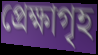
প্ৰেক্ষাগৃহ